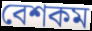
বেশকম